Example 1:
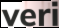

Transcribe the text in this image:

veri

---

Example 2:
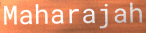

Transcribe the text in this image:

Maharajah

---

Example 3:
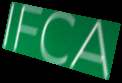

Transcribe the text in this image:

IFCA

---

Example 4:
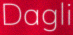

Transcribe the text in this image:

Dagli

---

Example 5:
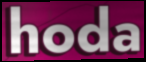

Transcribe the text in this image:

hoda